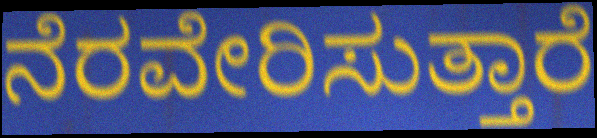
ನೆರವೇರಿಸುತ್ತಾರೆ